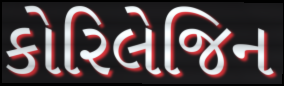
કોરિલેજિન